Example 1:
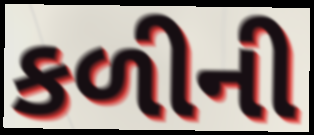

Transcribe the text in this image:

કળીની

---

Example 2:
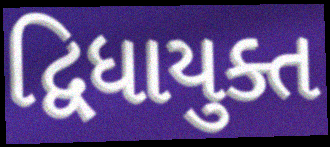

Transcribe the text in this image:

દ્વિધાયુક્ત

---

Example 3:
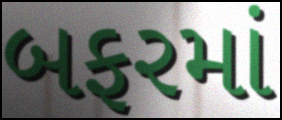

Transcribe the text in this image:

બફરમાં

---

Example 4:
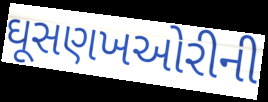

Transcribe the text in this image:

ઘૂસણખઓરીની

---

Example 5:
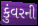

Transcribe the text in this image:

કુંવરની